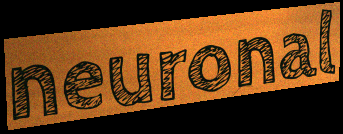
neuronal